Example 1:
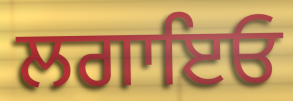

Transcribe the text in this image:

ਲਗਾਇਓ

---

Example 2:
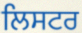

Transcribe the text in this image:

ਲਿਸਟਰ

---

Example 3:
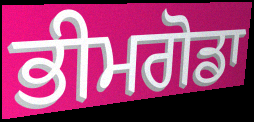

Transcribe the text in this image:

ਭੀਮਗੋਡਾ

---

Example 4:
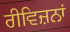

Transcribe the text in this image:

ਰੀਵਿਜ਼ਨਾਂ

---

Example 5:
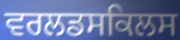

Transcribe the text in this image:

ਵਰਲਡਸਕਿਲਸ